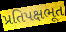
પ્રતિપક્ષભૂત